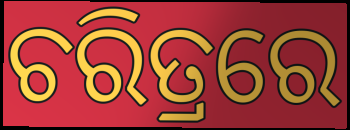
ଚରିତ୍ରରେ